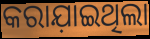
କରାଯ଼ାଇଥିଲା